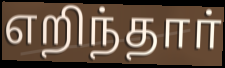
எறிந்தார்